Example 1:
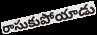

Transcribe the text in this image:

రాసుకుపోయాడు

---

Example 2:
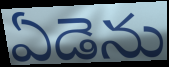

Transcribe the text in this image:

ఏడెను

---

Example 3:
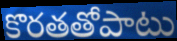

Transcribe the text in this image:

కొరతతోపాటు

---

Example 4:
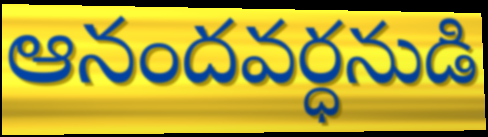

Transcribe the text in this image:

ఆనందవర్ధనుడి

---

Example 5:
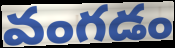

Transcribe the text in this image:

వంగడం